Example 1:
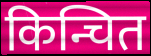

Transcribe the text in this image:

किन्चित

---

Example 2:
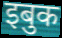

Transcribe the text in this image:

इबुक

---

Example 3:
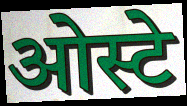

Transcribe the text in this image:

ओस्टे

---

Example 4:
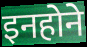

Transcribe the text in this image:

इनहोने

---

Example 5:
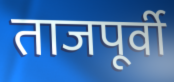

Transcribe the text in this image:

ताजपूर्वी